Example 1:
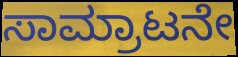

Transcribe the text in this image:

ಸಾಮ್ರಾಟನೇ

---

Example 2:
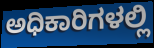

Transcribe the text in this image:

ಅಧಿಕಾರಿಗಳಲ್ಲಿ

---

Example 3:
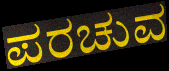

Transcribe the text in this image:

ಪರಚುವ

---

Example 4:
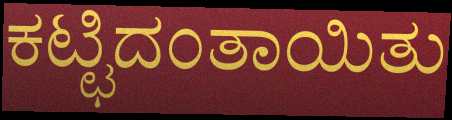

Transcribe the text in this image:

ಕಟ್ಟಿದಂತಾಯಿತು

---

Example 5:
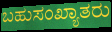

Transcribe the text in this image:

ಬಹುಸಂಖ್ಯಾತರು